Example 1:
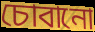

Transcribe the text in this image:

চোবানো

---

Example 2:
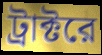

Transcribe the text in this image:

ট্রাক্টরে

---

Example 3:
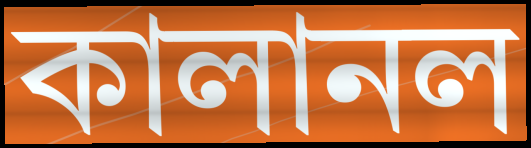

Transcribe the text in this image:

কালানল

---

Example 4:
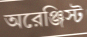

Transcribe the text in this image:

অরেঞ্জিস্ট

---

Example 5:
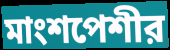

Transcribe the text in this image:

মাংশপেশীর